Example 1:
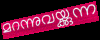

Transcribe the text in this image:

മറന്നുവയ്ക്കുന്ന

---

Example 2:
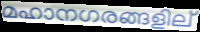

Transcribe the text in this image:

മഹാനഗരങ്ങളില്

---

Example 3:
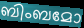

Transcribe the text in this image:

ബിംബമോ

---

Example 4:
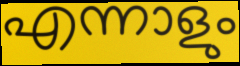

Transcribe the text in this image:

എന്നാളും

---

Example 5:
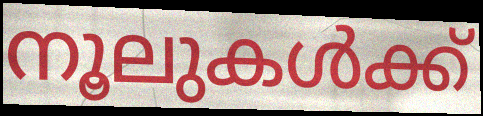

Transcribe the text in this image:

നൂലുകൾക്ക്